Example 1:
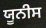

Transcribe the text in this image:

ਯੂਨੀਸ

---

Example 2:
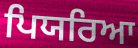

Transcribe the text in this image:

ਪਿਯਰਿਆ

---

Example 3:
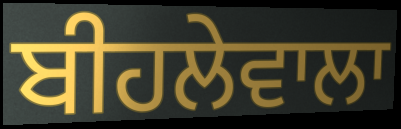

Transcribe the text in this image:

ਬੀਹਲੇਵਾਲਾ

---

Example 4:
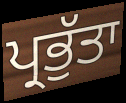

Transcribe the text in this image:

ਪ੍ਰਭੁੱਤਾ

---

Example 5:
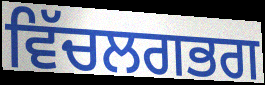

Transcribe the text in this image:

ਵਿੱਚਲਗਭਗ